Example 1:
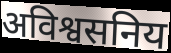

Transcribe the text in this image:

अविश्वसनिय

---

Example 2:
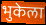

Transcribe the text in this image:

भुकेला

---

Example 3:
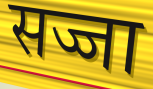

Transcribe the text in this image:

सज्जा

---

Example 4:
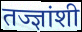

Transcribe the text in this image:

तज्ज्ञांशी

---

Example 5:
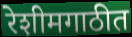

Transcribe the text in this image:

रेशीमगाठीत